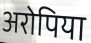
अरोपिया